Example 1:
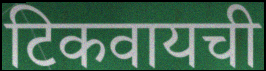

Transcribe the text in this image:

टिकवायची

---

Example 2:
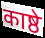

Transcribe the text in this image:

काष्ठे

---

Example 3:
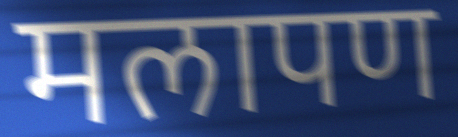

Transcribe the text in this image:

मलापण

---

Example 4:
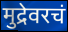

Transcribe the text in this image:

मुद्रेवरचं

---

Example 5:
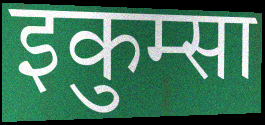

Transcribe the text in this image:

इकुम्सा